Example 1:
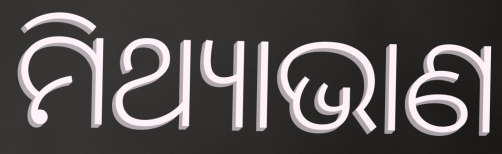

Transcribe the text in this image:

ମିଥ୍ୟାଭାଣ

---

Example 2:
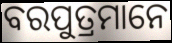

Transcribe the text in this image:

ବରପୁତ୍ରମାନେ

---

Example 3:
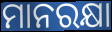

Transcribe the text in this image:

ମାନରକ୍ଷା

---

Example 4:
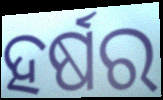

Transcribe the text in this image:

ହର୍ଷର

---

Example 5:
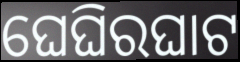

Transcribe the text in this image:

ଘେଘିରଘାଟ